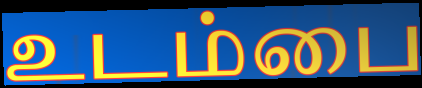
உடம்பை